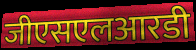
जीएसएलआरडी